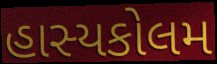
હાસ્યકોલમ